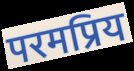
परमप्रिय